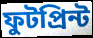
ফুটপ্রিন্ট